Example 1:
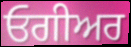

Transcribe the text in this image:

ਓਗੀਅਰ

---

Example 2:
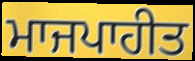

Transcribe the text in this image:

ਮਾਜਪਾਹੀਤ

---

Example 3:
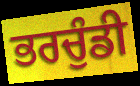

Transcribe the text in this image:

ਭਰਚੁੰਡੀ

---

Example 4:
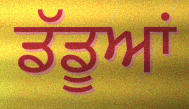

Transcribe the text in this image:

ਡੱਡੂਆਂ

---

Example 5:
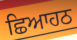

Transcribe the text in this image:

ਛਿਆਹਠ